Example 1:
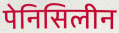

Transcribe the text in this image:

पेनिसिलीन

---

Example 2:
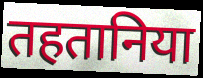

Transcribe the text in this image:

तहतानिया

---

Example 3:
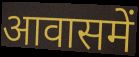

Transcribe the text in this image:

आवासमें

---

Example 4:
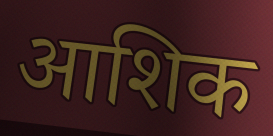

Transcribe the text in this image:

आशिक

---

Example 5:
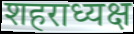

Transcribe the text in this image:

शहराध्यक्ष